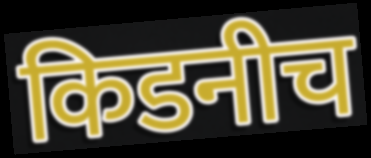
किडनीच